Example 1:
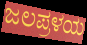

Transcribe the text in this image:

ಜಲಪ್ರಳಯ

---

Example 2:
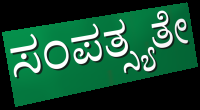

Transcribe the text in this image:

ಸಂಪತ್ಸ್ಯತೇ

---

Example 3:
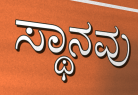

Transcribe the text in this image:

ಸ್ಥಾನವು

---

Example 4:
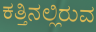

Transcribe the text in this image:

ಕತ್ತಿನಲ್ಲಿರುವ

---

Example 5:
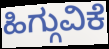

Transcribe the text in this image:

ಹಿಗ್ಗುವಿಕೆ